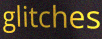
glitches